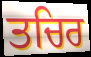
ਤਚਿਰ